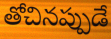
తోచినప్పుడే